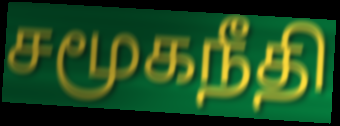
சமூகநீதி